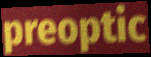
preoptic